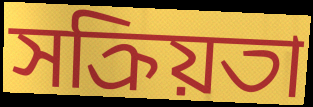
সক্ৰিয়তা